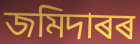
জমিদাৰৰ